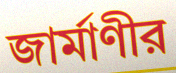
জার্মাণীর